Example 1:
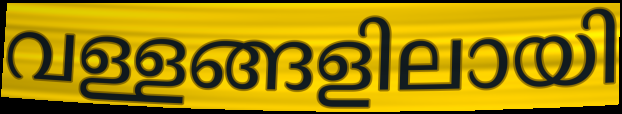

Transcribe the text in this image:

വള്ളങ്ങളിലായി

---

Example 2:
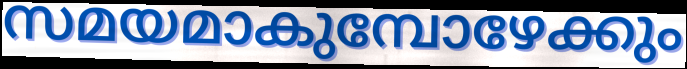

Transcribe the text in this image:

സമയമാകുമ്പോഴേക്കും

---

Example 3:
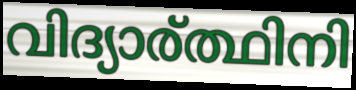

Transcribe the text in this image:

വിദ്യാര്ത്ഥിനി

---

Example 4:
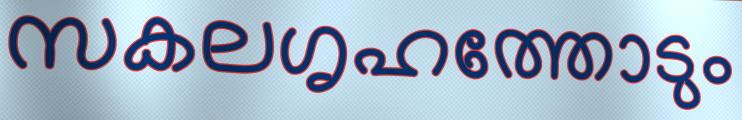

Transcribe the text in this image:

സകലഗൃഹത്തോടും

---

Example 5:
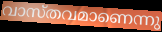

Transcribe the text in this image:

വാസ്തവമാണെന്നു